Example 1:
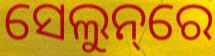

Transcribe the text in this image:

ସେଲୁନ୍‌ରେ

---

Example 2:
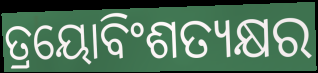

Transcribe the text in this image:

ତ୍ରୟୋବିଂଶତ୍ୟକ୍ଷର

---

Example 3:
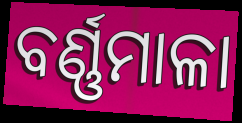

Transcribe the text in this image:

ବର୍ଣ୍ଣମାଳା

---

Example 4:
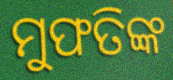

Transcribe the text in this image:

ମୁଫତିଙ୍କ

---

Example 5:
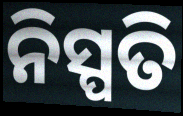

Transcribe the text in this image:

ନିସ୍ପତି